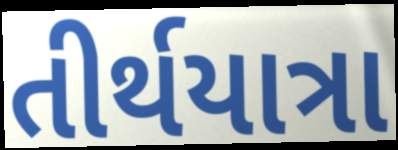
તીર્થયાત્રા